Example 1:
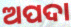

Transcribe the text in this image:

ଅପଦା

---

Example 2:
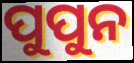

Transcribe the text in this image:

ପୁପୁନ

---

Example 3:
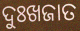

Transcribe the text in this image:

ଦୁଃଖଜାତ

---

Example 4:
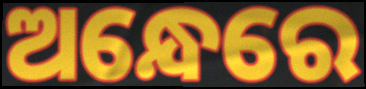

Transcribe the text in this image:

ଅନ୍ଧେରେ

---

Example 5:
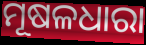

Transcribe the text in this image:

ମୂଷଳଧାରା